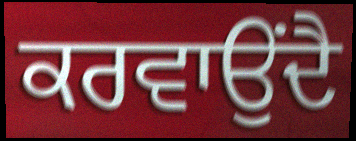
ਕਰਵਾਉਂਦੈ